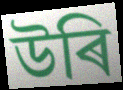
উৰি